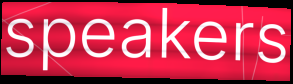
speakers